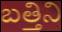
బత్తిని